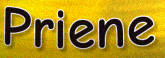
Priene